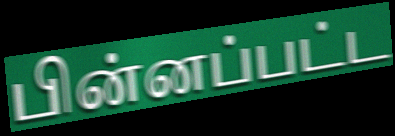
பின்னப்பட்ட